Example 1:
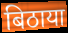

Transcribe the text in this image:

बिठाया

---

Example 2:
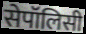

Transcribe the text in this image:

सेपॉलिसी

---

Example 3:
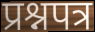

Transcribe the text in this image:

प्रश्नपत्र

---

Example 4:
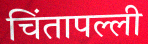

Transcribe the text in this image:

चिंतापल्ली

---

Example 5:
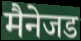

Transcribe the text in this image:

मैनेजड